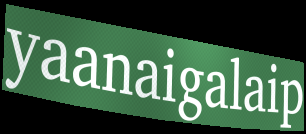
yaanaigalaip